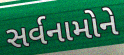
સર્વનામોને